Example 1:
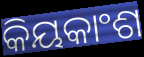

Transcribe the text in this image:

କିୟକାଂଶ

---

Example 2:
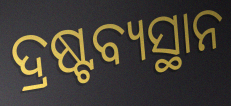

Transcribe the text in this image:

ଦ୍ରଷ୍ଟବ୍ୟସ୍ଥାନ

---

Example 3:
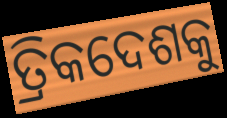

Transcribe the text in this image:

ତ୍ରିକଦେଶକୁ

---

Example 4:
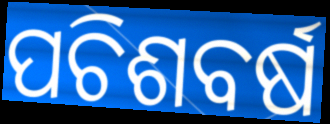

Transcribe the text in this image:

ପଚିଶବର୍ଷ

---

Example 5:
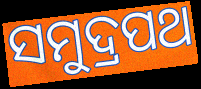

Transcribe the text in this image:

ସମୁଦ୍ରପଥ